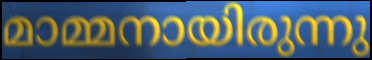
മാമ്മനായിരുന്നു